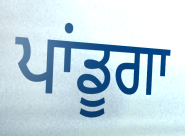
ਪਾਂਡੂਗਾ